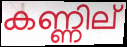
കണ്ണില്